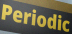
Periodic